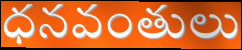
ధనవంతులు